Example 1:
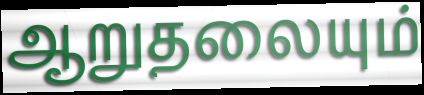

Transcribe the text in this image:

ஆறுதலையும்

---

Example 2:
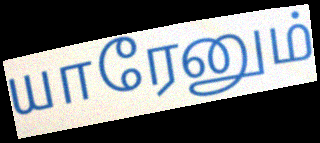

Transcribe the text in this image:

யாரேனும்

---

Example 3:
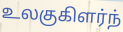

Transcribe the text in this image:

உலகுகிளர்ந்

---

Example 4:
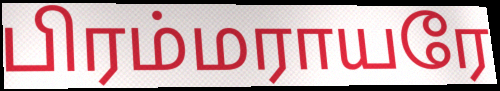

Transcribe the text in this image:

பிரம்மராயரே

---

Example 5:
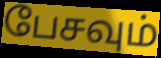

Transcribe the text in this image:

பேசவும்